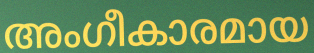
അംഗീകാരമായ